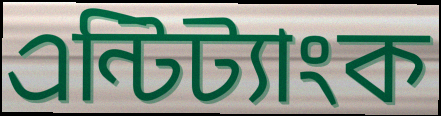
এন্টিট্যাংক